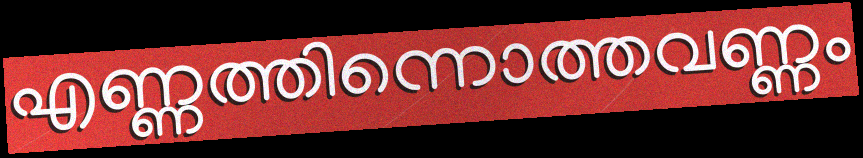
എണ്ണത്തിന്നൊത്തവണ്ണം